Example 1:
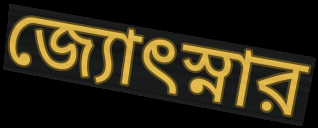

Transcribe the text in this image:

জ্যোৎস্নার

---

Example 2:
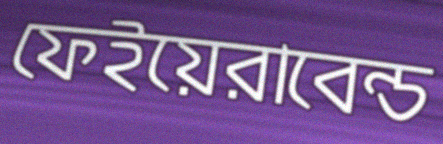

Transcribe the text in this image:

ফেইয়েরাবেন্ড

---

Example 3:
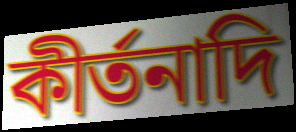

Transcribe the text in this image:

কীর্তনাদি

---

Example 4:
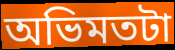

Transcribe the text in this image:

অভিমতটা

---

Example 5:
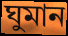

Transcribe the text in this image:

ঘুমান